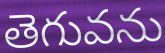
తెగువను